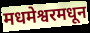
मधमेश्वरमधून